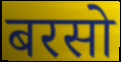
बरसो